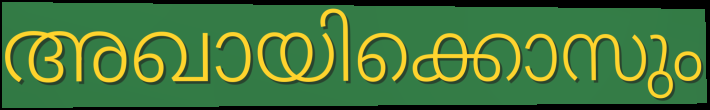
അഖായിക്കൊസും